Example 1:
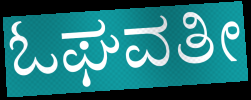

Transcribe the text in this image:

ಓಘವತೀ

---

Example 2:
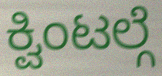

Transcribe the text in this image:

ಕ್ವಿಂಟಲ್ಗೆ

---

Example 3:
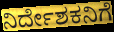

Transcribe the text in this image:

ನಿರ್ದೇಶಕನಿಗೆ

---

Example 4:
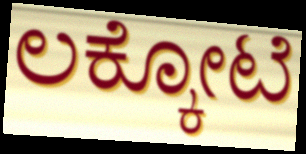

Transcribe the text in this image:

ಲಕ್ಕೋಟೆ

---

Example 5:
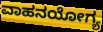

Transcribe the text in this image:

ವಾಹನಯೋಗ್ಯ